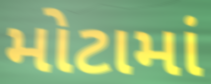
મોટામાં